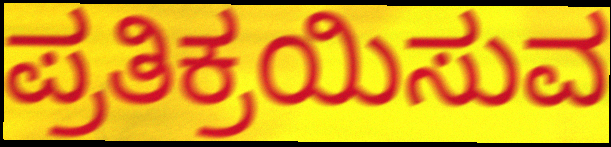
ಪ್ರತಿಕ್ರಯಿಸುವ